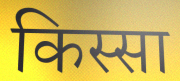
किस्सा